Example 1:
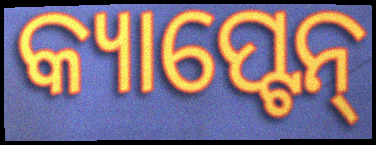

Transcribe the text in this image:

କ୍ୟାପ୍ଟେନ୍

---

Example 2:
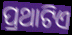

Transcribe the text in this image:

ପ୍ରଥାଟିଏ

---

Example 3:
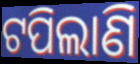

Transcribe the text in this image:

ଟପିଲାଣି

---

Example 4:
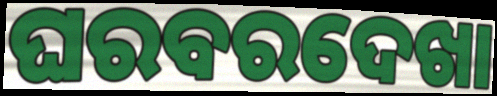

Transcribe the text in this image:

ଘରବରଦେଖା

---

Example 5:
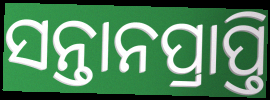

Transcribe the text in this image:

ସନ୍ତାନପ୍ରାପ୍ତି